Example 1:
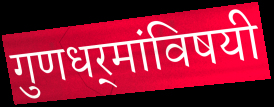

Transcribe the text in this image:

गुणधर्मांविषयी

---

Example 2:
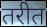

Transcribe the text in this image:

तरीत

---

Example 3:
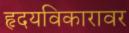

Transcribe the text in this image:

हृदयविकारावर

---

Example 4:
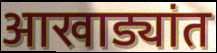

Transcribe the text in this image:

आखाड्यांत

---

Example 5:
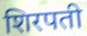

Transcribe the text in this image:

शिरपती